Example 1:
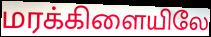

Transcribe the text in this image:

மரக்கிளையிலே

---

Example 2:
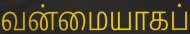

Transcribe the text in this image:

வன்மையாகப்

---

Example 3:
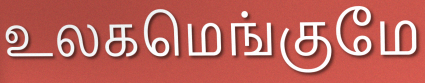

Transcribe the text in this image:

உலகமெங்குமே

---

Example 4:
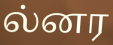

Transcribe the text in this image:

ல்னர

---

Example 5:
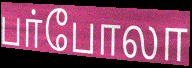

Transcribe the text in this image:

பர்போலா